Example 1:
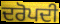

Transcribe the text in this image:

ਦਰੋਪਦੀ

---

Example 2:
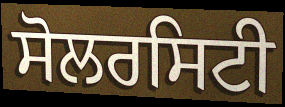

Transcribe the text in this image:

ਸੋਲਰਸਿਟੀ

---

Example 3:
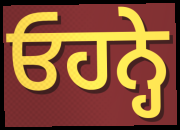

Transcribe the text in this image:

ਓਹਨ੍ਹੇ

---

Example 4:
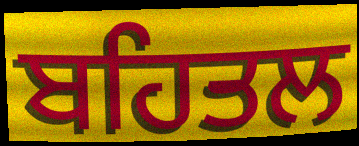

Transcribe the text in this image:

ਬਹਿਤਲ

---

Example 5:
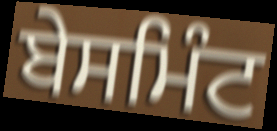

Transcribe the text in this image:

ਬੇਸਮਿੰਟ